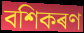
বশিকৰণ